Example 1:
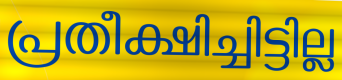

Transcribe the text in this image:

പ്രതീക്ഷിച്ചിട്ടില്ല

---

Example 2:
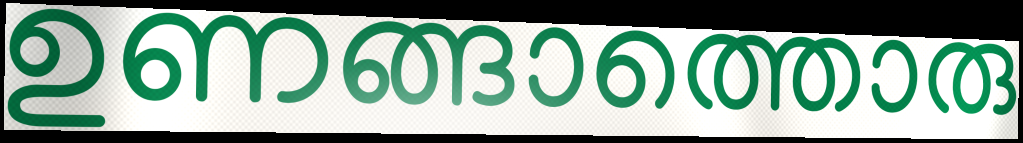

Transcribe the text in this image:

ഉണങ്ങാത്തൊരു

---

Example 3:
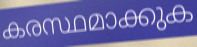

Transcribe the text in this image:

കരസ്ഥമാക്കുക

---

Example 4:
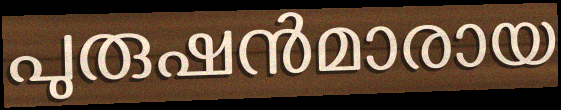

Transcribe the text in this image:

പുരുഷൻമാരായ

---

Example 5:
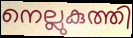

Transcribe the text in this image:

നെല്ലുകുത്തി